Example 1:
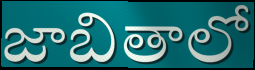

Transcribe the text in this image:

జాబితాలో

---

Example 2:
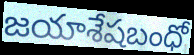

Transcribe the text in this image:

జయాశేషబంధో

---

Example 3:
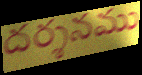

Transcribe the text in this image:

దర్శనము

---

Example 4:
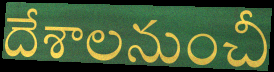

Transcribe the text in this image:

దేశాలనుంచీ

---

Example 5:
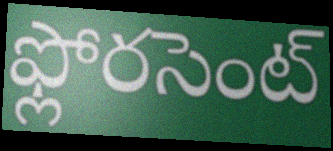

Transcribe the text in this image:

ఫ్లోరసెంట్